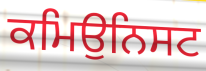
ਕਮਿਉਨਿਸਟ